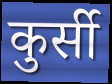
कुर्सी